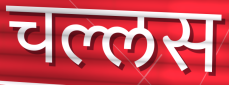
चल्लस